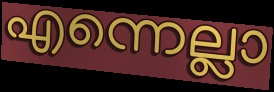
എന്നെല്ലാ